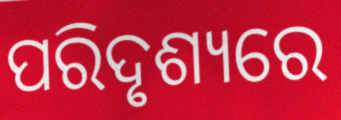
ପରିଦୃଶ୍ୟରେ